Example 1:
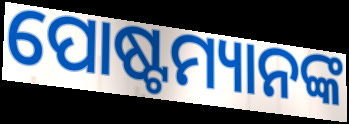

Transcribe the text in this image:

ପୋଷ୍ଟମ୍ୟାନଙ୍କ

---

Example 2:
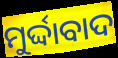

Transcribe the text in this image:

ମୁର୍ଦ୍ଦାବାଦ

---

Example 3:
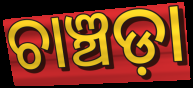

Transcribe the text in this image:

ଚାଞ୍ଚଡ଼ା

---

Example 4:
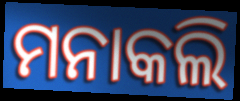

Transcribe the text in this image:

ମନାକଲି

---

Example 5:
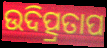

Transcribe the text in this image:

ଉଦିତ୍ପ୍ରତାପ